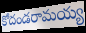
కోదండరామయ్య